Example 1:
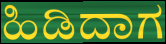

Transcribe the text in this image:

ಹಿಡಿದಾಗ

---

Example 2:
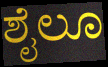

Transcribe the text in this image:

ಶೈಲೂ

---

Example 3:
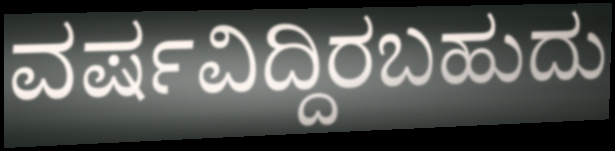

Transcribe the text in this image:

ವರ್ಷವಿದ್ದಿರಬಹುದು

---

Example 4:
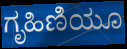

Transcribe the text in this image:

ಗೃಹಿಣಿಯೂ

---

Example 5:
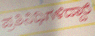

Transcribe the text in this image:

ಪ್ರತಿನಿಧಿಗಳಿದ್ದಾರೆ